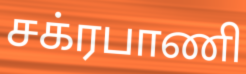
சக்ரபாணி